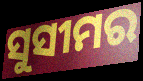
ସୁସୀମର